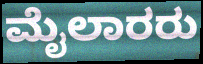
ಮೈಲಾರರು